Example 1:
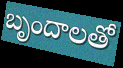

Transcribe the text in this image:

బృందాలతో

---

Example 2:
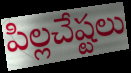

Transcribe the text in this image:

పిల్లచేష్టలు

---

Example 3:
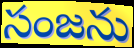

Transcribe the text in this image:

సంజను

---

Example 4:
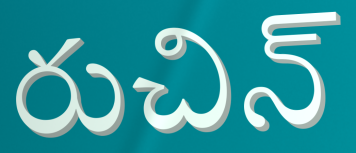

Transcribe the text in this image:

రుచిన్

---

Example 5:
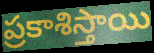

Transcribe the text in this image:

ప్రకాశిస్తాయి